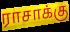
ராசாக்கு